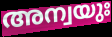
അന്വയുഃ